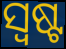
ସ୍ୱଷ୍ଟ